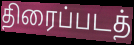
திரைப்படத்